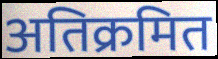
अतिक्रमित